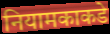
नियामकाकडे